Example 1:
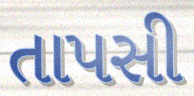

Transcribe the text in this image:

તાપસી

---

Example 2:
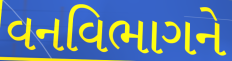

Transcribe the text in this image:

વનવિભાગને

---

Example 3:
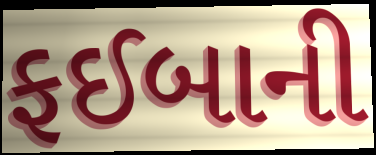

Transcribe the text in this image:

ફઈબાની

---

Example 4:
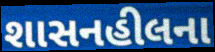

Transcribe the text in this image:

શાસનહીલના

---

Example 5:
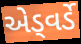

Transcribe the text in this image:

એડ્વર્ડે